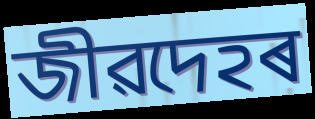
জীৱদেহৰ